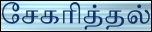
சேகரித்தல்